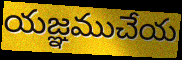
యజ్ఞముచేయ